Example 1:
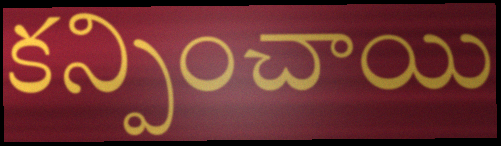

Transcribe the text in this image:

కన్పించాయి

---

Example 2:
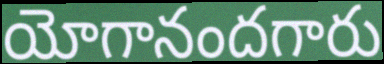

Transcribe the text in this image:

యోగానందగారు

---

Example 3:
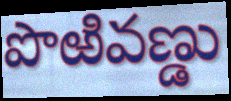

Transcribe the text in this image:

పొఱివణ్డు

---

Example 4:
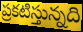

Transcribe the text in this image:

ప్రకటిస్తున్నది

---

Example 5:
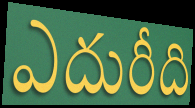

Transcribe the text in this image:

ఎదురీది